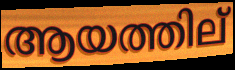
ആയത്തില്